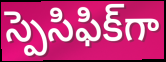
స్పెసిఫిక్‌గా